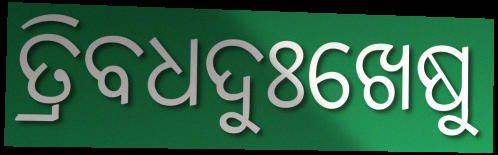
ତ୍ରିବଧଦୁଃଖେଷୁ